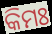
କିମଃ